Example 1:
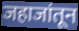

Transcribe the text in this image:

जहाजांतून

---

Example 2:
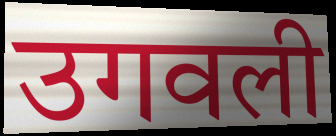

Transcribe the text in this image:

उगवली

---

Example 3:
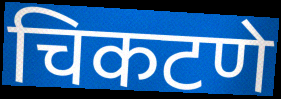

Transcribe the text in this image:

चिकटणे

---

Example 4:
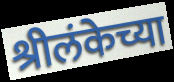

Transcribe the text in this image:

श्रीलंकेच्या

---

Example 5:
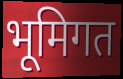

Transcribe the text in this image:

भूमिगत